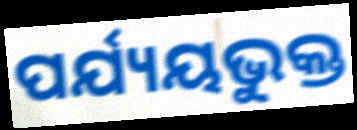
ପର୍ଯ୍ୟୟଭୁକ୍ତ